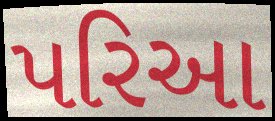
પરિઆ